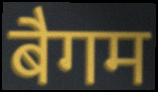
बैगम